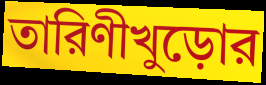
তারিণীখুড়োর